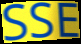
SSE